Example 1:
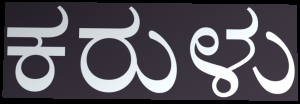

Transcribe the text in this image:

ಕರುಳು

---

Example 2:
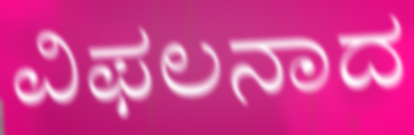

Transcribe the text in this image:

ವಿಫಲನಾದ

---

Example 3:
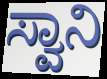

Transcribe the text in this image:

ಸ್ವಾನಿ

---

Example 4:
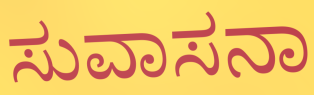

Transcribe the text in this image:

ಸುವಾಸನಾ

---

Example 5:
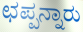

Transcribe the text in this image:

ಛಪ್ಪನ್ನಾರು